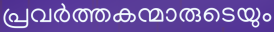
പ്രവർത്തകന്മാരുടെയും